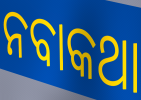
ନବାକଥା